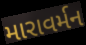
મારાવર્મન